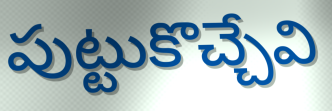
పుట్టుకొచ్చేవి